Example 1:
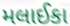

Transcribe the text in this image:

મલાઈકા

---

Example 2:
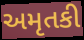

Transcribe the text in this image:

અમૃતકી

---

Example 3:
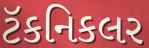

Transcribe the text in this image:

ટૅકનિકલર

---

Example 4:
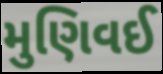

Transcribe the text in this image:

મુણિવઈ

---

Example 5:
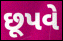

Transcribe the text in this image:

છૂપવે